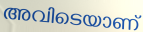
അവിടെയാണ്